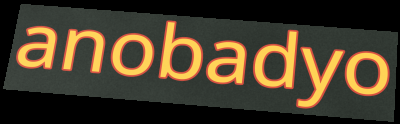
anobadyo